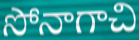
సోనాగాచి